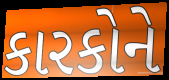
કારકોને